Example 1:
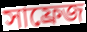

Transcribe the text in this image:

সাফ্রেজ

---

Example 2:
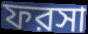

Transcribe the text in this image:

ফরসা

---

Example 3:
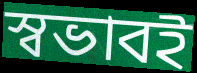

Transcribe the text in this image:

স্বভাবই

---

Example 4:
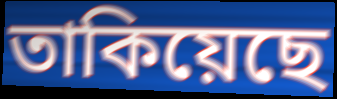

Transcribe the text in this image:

তাকিয়েছে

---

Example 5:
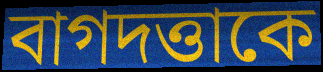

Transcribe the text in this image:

বাগদত্তাকে